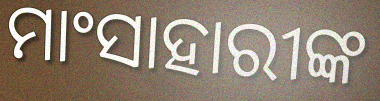
ମାଂସାହାରୀଙ୍କ